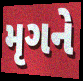
મૃગને